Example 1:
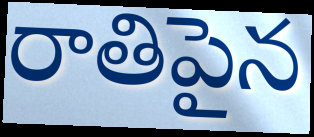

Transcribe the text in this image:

రాతిపైన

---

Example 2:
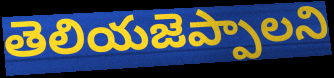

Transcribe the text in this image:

తెలియజెప్పాలని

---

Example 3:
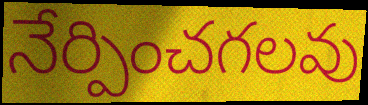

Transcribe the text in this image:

నేర్పించగలవు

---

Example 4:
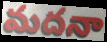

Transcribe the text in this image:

మదనా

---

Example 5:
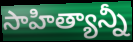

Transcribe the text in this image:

సాహిత్యాన్నీ